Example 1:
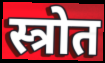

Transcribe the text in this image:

स्त्रोत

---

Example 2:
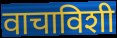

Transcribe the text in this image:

वाचाविशी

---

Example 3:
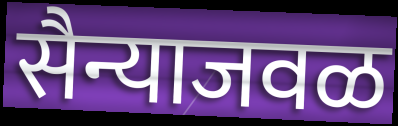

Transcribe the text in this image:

सैन्याजवळ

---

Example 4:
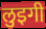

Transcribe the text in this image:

लुइगी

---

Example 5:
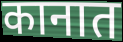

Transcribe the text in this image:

कानात